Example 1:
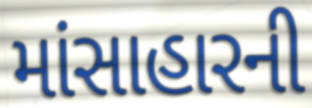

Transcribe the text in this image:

માંસાહારની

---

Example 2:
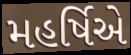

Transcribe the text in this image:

મહર્ષિએ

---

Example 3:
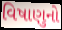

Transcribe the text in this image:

વિષાણુનો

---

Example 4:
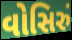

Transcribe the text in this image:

વોસિરું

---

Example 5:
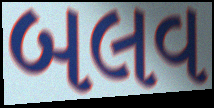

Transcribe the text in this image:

બલવ